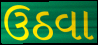
ઉઠવા